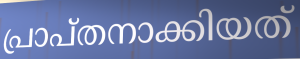
പ്രാപ്തനാക്കിയത്